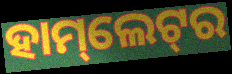
ହାମ୍‌ଲେଟ୍‌ର